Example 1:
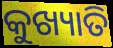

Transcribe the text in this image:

କୁଖ୍ୟାତି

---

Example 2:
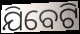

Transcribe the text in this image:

ଯିବେଟି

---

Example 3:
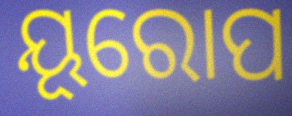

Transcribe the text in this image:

ୟୂରୋପ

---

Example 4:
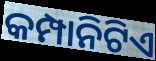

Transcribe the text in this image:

କମ୍ପାନିଟିଏ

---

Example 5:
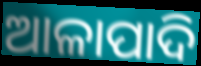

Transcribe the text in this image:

ଆଳାପାଦି